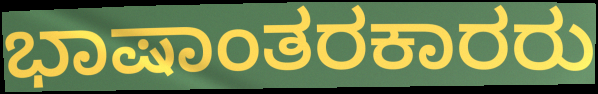
ಭಾಷಾಂತರಕಾರರು